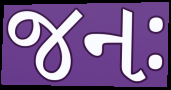
જનઃ